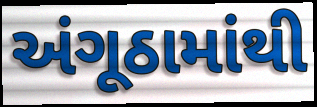
અંગૂઠામાંથી